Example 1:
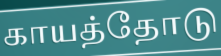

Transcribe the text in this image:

காயத்தோடு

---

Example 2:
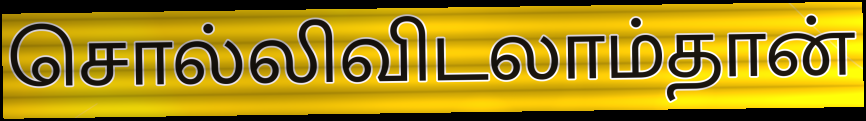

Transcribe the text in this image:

சொல்லிவிடலாம்தான்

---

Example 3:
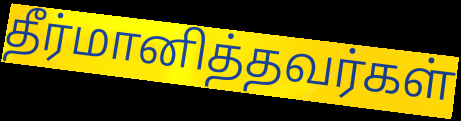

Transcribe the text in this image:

தீர்மானித்தவர்கள்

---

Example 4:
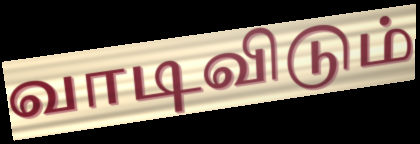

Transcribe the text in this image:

வாடிவிடும்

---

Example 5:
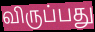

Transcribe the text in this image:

விருப்பது